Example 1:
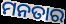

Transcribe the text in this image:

ମନତାର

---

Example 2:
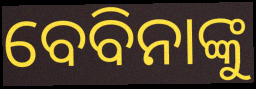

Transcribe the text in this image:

ବେବିନାଙ୍କୁ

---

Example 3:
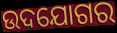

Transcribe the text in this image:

ଉଦଯୋଗର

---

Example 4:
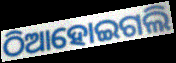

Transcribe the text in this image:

ଠିଆହୋଇଗଲି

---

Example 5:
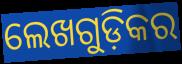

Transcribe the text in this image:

ଲେଖଗୁଡ଼ିକର